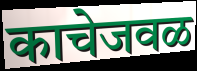
काचेजवळ